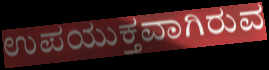
ಉಪಯುಕ್ತವಾಗಿರುವ